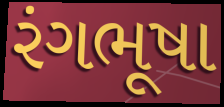
રંગભૂષા